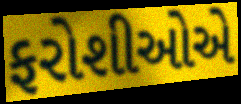
ફરોશીઓએ